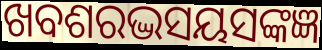
ଖବଶରଦ୍ଭସୟସଙ୍କଜ୍ଞ